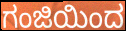
ಗಂಜಿಯಿಂದ